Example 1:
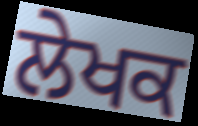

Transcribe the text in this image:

ਲੇਖਕ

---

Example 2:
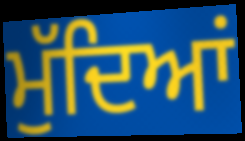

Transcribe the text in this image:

ਮੁੱਦਿਆਂ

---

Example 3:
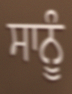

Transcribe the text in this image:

ਸਾਨੂੰ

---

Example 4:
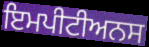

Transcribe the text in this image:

ਇਮਪੀਟੀਅਨਸ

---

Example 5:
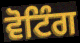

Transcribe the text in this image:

ਵੋਟਿੰਗ